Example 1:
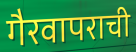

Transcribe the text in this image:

गैरवापराची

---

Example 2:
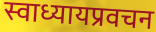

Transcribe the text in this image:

स्वाध्यायप्रवचन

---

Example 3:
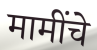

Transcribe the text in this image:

मामींचे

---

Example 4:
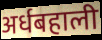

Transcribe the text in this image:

अर्धबहाली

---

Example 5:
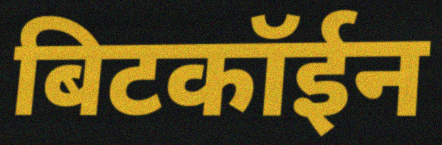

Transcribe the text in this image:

बिटकॉईन